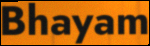
Bhayam